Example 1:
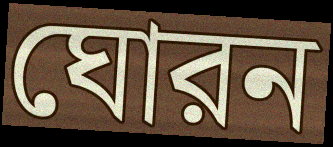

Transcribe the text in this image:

ঘোরন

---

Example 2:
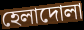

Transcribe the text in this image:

হেলাদোলা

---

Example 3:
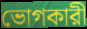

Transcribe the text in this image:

ভোগকারী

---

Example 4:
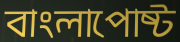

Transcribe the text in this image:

বাংলাপোষ্ট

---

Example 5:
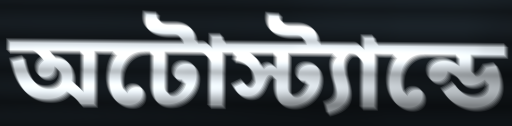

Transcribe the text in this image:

অটোস্ট্যান্ডে